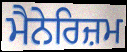
ਮੈਨੇਰਿਜ਼ਮ